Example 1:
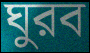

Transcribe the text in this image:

ঘুরব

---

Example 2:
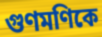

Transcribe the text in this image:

গুণমণিকে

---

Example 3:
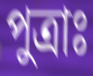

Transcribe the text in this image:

পুত্রাঃ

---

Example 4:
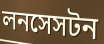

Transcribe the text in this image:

লনসেসটন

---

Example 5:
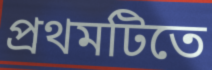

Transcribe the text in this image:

প্রথমটিতে